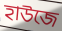
হাউজে